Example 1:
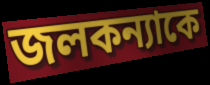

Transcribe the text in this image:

জলকন্যাকে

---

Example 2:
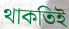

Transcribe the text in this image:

থাকতিই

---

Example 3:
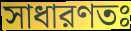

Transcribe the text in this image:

সাধারণতঃ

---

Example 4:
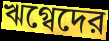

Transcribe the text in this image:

ঋগ্বেদের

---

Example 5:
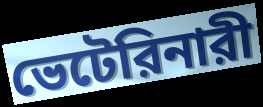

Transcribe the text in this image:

ভেটেরিনারী